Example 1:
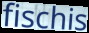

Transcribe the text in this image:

fischis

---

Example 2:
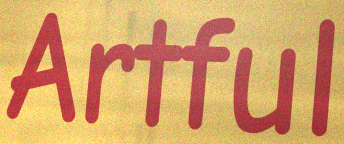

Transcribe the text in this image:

Artful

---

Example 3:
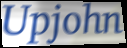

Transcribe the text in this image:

Upjohn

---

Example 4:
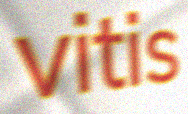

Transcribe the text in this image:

vitis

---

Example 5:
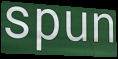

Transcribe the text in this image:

spun